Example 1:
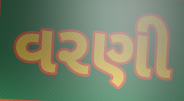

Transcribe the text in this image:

વરણી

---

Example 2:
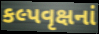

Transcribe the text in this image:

કલ્પવૃક્ષનાં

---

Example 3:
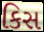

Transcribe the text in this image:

કિસ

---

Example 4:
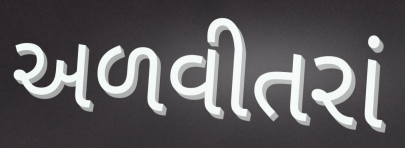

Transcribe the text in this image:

અળવીતરાં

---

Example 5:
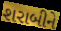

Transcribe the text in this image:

શરાબીને